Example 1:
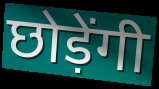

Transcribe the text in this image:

छोड़ेंगी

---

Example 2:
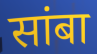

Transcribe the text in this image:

सांबा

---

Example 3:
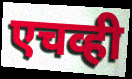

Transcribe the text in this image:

एचव्ही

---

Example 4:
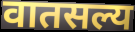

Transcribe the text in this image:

वातसल्य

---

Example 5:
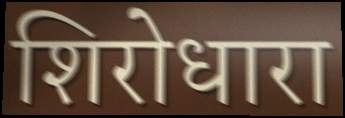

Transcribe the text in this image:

शिरोधारा